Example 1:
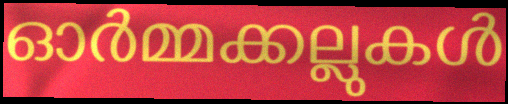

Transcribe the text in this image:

ഓർമ്മക്കല്ലുകൾ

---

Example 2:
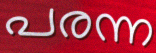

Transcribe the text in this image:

പരന്ന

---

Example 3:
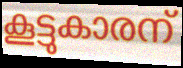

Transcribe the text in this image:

കൂട്ടുകാരന്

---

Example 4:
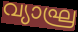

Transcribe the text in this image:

വ്യാഘ്ര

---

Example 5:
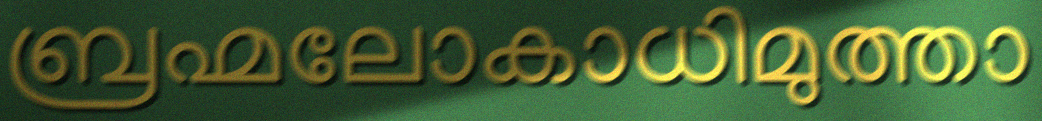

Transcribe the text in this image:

ബ്രഹ്മലോകാധിമുത്താ